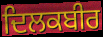
ਦਿਲਕਬੀਰ